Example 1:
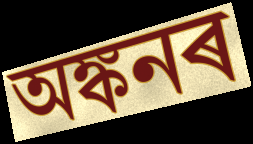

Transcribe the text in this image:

অঙ্কনৰ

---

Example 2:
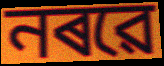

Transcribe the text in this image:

নৰৱে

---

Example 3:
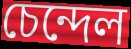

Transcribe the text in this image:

চেন্দেল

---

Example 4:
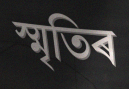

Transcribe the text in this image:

স্মৃতিৰ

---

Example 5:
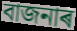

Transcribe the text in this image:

বাজনাৰ